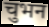
चुभन